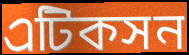
এটিকসন